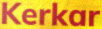
Kerkar